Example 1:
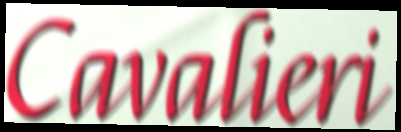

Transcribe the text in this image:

Cavalieri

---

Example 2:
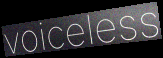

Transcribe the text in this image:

voiceless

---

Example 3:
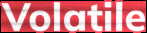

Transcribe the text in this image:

Volatile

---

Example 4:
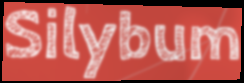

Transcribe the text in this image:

Silybum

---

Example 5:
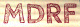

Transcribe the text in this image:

MDRF